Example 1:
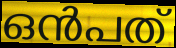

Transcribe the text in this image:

ഒൻപത്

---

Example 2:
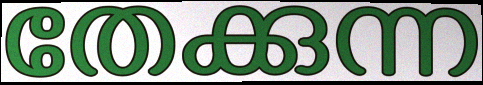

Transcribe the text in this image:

തേക്കുന്ന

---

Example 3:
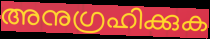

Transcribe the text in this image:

അനുഗ്രഹിക്കുക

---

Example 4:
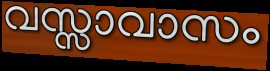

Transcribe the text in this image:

വസ്സാവാസം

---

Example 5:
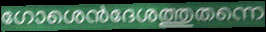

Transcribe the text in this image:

ഗോശെൻദേശത്തുതന്നെ